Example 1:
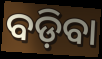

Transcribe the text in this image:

ବଡ଼ିବା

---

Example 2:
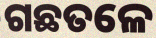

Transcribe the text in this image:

ଗଛତଳେ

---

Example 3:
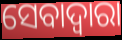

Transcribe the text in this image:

ସେବାଦ୍ବାରା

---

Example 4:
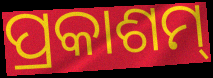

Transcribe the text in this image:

ପ୍ରକାଶମ୍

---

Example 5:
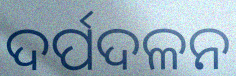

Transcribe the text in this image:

ଦର୍ପଦଳନ